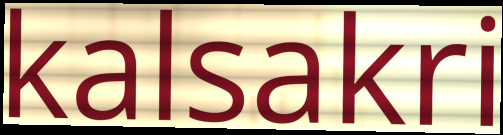
kalsakri